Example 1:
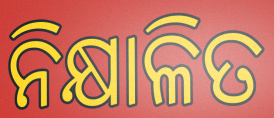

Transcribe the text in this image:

ନିକ୍ଷାଳିତ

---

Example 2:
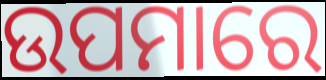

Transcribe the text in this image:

ଉପମାରେ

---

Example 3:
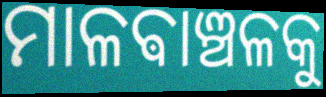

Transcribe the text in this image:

ମାଳଵାଞ୍ଚଳକୁ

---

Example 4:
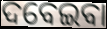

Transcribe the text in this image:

ଦବେଇବା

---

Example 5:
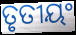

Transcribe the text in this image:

ତୃତୀୟଂ